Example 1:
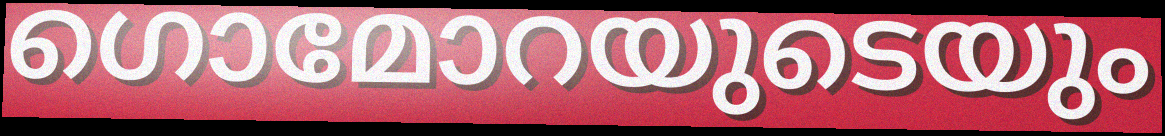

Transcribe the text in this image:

ഗൊമോറയുടെയും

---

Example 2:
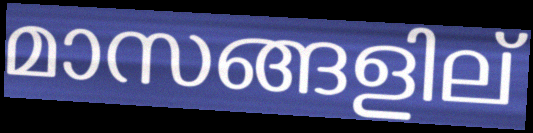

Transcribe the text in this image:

മാസങ്ങളില്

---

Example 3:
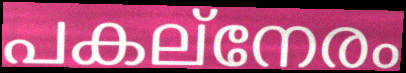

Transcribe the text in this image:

പകല്നേരം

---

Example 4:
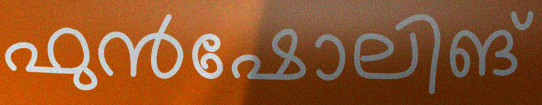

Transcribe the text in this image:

ഫുൻഷോലിങ്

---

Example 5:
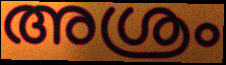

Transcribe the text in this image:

അശ്രം